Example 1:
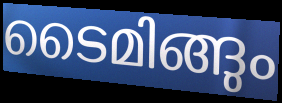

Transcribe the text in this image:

ടൈമിങ്ങും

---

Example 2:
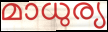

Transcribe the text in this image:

മാധുര്യ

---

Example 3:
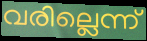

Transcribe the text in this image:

വരില്ലെന്ന്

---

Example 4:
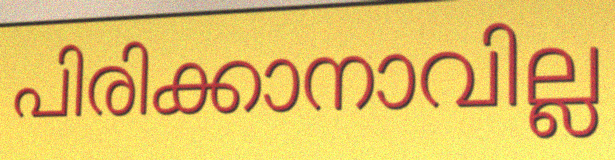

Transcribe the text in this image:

പിരിക്കാനാവില്ല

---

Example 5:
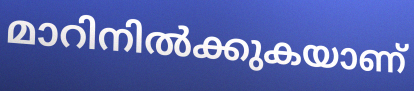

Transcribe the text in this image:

മാറിനിൽക്കുകയാണ്